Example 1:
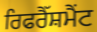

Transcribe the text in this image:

ਰਿਫਰੈੱਸ਼ਮੈਂਟ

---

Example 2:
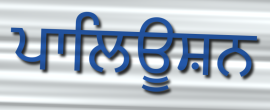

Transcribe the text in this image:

ਪਾਲਿਊਸ਼ਨ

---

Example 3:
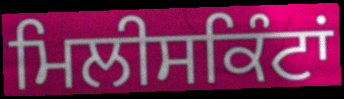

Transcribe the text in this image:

ਮਿਲੀਸਕਿੰਟਾਂ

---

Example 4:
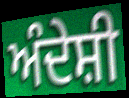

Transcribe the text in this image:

ਅੰਦੇਸ਼ੀ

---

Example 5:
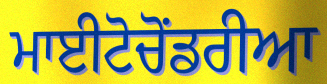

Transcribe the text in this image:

ਮਾਈਟੋਚੋਂਡਰੀਆ